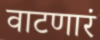
वाटणारं